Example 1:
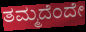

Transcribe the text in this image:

ತಮ್ಮದೆಂದೇ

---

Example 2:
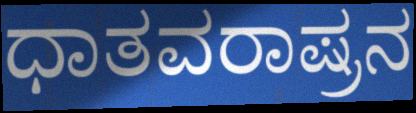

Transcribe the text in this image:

ಧಾತವರಾಷ್ರನ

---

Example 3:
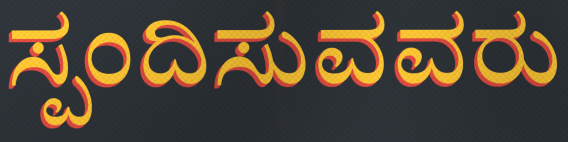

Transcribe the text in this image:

ಸ್ಪಂದಿಸುವವರು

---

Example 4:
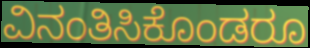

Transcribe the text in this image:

ವಿನಂತಿಸಿಕೊಂಡರೂ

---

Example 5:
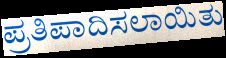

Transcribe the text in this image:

ಪ್ರತಿಪಾದಿಸಲಾಯಿತು